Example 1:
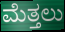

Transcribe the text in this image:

ಮೆತ್ತಲು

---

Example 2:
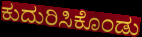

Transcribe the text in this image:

ಕುದುರಿಸಿಕೊಂಡು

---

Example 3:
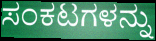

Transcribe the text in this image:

ಸಂಕಟಗಳನ್ನು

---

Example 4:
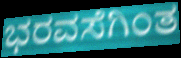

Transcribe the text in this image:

ಭರವಸೆಗಿಂತ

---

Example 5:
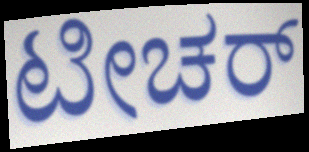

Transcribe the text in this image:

ಟೀಚರ್